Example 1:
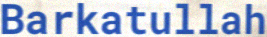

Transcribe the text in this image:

Barkatullah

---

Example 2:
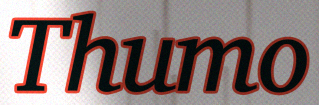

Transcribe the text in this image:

Thumo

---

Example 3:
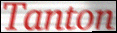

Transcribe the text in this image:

Tanton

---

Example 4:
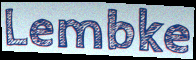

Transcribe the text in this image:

Lembke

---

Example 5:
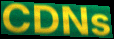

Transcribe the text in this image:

CDNs